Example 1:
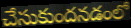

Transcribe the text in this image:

చేసుకుందనడంలో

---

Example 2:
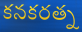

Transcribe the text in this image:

కనకరత్న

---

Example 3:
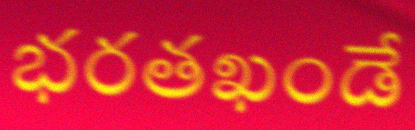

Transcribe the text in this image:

భరతఖండే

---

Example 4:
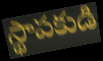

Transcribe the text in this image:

స్థాపకుడి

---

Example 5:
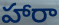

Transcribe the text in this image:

హారా